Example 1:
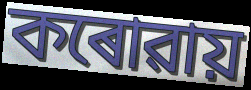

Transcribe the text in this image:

কৰোৱায়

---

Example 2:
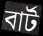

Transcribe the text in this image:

বাৰ্ট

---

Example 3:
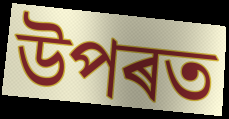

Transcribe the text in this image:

উপৰত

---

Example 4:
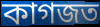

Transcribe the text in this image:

কাগজত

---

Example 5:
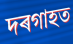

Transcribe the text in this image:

দৰগাহত